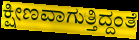
ಕ್ಷೀಣವಾಗುತ್ತಿದ್ದಂತೆ